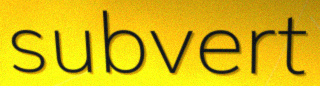
subvert